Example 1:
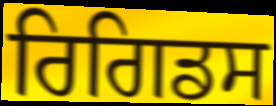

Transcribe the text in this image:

ਰਿਗਿਡਸ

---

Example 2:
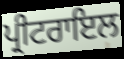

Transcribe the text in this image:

ਪ੍ਰੀਟਰਾਇਲ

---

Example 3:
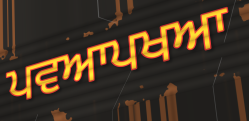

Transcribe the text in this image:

ਪਵਆਪਖਆ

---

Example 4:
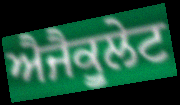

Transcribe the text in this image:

ਐਜੈਕੂਲੇਟ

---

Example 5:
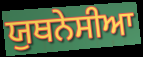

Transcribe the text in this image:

ਯੁਥਨੇਸੀਆ